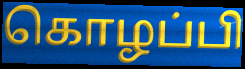
கொழப்பி